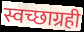
स्वच्छाग्रही